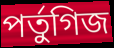
পর্তুগিজ